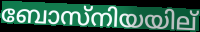
ബോസ്നിയയില്